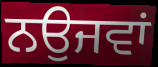
ਨਉਜਵਾਂ